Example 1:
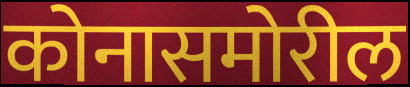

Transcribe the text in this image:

कोनासमोरील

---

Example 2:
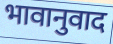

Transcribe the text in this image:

भावानुवाद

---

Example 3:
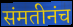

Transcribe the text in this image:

संमतीनंच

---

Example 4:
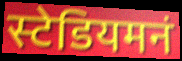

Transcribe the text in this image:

स्टेडियमनं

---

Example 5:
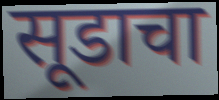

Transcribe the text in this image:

सूडाचा